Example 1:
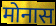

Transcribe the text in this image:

मोनास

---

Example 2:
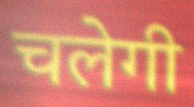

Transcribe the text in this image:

चलेगी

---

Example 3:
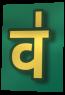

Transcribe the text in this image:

व॑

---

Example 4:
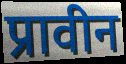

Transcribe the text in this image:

प्रावीन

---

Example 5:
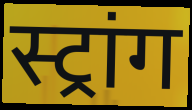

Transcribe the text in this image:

स्ट्रांग